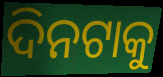
ଦିନଟାକୁ